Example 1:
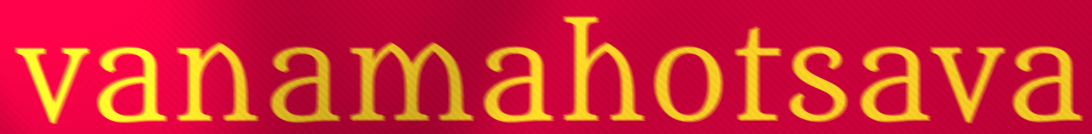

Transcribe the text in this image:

vanamahotsava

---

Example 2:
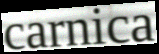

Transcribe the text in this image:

carnica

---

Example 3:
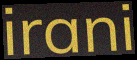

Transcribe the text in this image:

irani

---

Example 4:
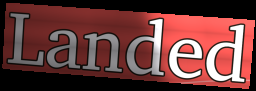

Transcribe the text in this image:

Landed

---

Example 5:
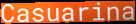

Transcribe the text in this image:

Casuarina